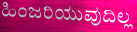
ಹಿಂಜರಿಯುವುದಿಲ್ಲ